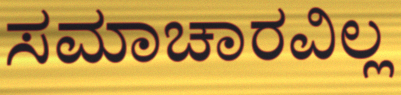
ಸಮಾಚಾರವಿಲ್ಲ